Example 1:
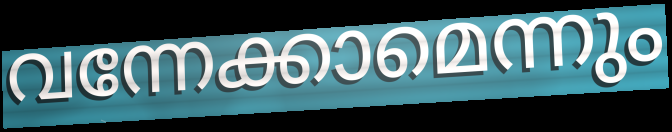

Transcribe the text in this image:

വന്നേക്കാമെന്നും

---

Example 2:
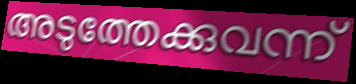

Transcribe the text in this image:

അടുത്തേക്കുവന്ന്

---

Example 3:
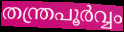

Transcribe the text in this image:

തന്ത്രപൂർവ്വം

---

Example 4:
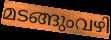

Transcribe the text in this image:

മടങ്ങുംവഴി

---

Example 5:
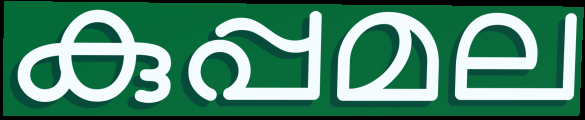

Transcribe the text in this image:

കുപ്പമല